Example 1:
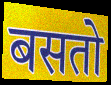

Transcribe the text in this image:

बसतो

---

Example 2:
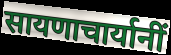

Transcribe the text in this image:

सायणाचार्यानीं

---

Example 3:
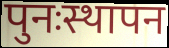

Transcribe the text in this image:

पुनःस्थापन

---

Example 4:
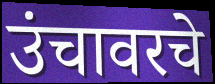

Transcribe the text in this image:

उंचावरचे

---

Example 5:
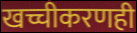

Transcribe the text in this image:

खच्चीकरणही